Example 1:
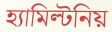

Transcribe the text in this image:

হ্যামিল্টনিয়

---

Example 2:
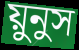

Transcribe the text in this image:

য়ুনুস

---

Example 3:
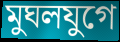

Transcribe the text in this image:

মুঘলযুগে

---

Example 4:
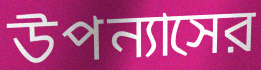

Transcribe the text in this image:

উপন্যাসের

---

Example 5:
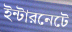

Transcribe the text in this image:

ইন্টারনেটে